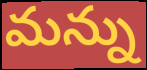
మన్ను